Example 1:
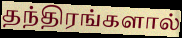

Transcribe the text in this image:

தந்திரங்களால்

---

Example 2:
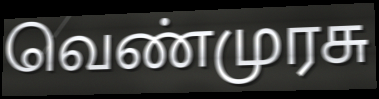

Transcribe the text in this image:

வெண்முரசு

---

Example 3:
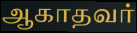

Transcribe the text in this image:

ஆகாதவர்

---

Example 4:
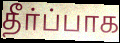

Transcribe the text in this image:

தீர்ப்பாக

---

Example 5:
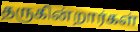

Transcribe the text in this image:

தருகின்றார்கள்